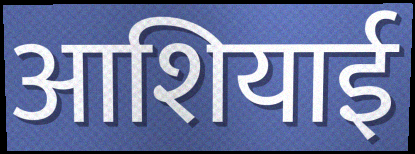
आशियाई